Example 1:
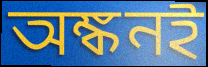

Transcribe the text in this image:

অঙ্কনই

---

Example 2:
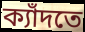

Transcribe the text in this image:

ক্যাঁদতে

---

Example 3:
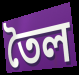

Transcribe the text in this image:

তৈল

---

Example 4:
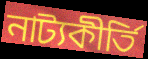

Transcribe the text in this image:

নাট্যকীর্তি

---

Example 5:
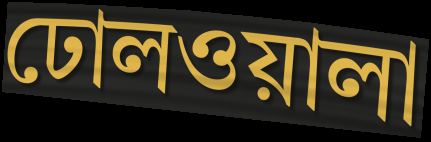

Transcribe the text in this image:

ঢোলওয়ালা